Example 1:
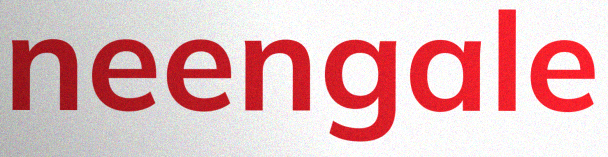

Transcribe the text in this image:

neengale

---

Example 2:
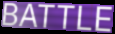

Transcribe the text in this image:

BATTLE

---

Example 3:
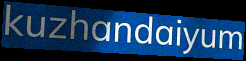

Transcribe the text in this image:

kuzhandaiyum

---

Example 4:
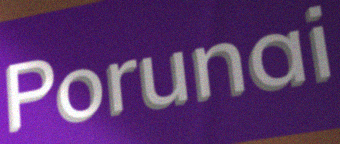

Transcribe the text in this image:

Porunai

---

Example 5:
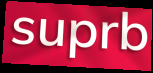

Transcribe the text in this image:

suprb